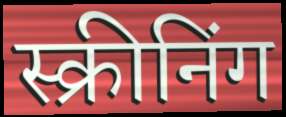
स्क्रीनिंग